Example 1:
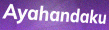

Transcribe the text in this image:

Ayahandaku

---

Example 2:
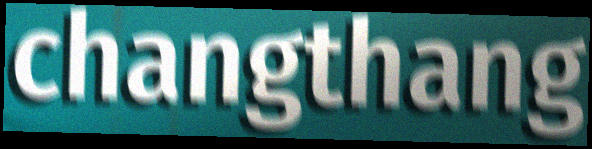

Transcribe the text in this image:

changthang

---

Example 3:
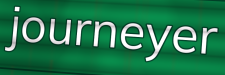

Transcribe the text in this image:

journeyer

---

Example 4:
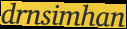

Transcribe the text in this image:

drnsimhan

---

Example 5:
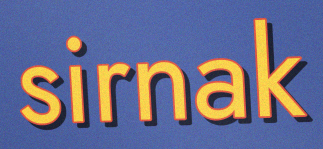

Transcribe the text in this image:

sirnak